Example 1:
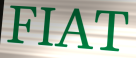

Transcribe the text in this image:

FIAT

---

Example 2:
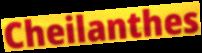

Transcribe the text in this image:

Cheilanthes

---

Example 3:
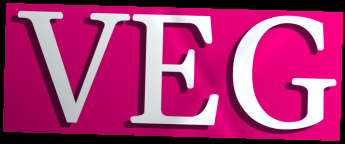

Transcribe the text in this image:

VEG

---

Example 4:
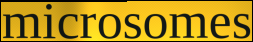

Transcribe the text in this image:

microsomes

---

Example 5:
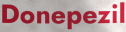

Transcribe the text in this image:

Donepezil